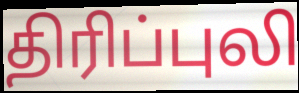
திரிப்புலி